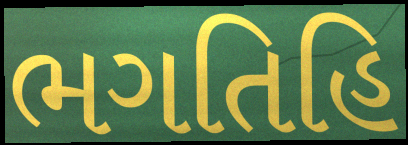
ભગતિહિ